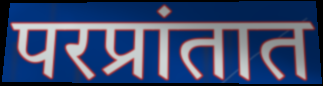
परप्रांतात